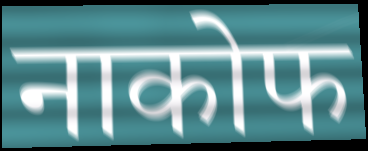
नाकोफ